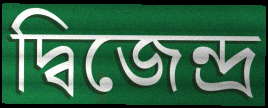
দ্বিজেন্দ্র